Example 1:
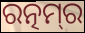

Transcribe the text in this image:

ରତ୍ନମ୍‌ର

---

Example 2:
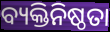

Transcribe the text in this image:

ବ୍ୟକ୍ତିନିଷ୍ଠତା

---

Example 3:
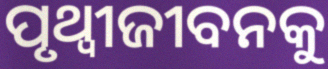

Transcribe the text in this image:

ପୃଥ୍ୱୀଜୀବନକୁ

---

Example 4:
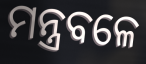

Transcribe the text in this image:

ମନ୍ତ୍ରବଳେ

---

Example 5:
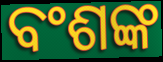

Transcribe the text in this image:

ବଂଶଙ୍କ